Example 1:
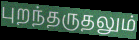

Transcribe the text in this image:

புறந்தருதலும்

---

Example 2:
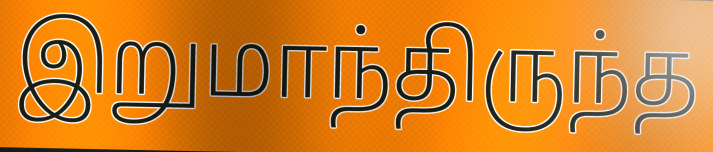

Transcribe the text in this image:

இறுமாந்திருந்த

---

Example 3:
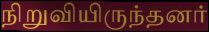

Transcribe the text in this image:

நிறுவியிருந்தனர்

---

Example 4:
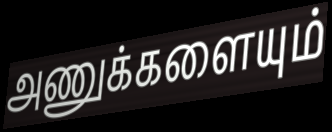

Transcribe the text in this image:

அணுக்களையும்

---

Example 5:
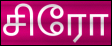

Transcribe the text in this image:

சிரோ